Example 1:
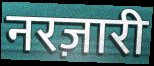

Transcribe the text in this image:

नरज़ारी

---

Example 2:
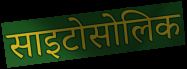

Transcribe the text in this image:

साइटोसोलिक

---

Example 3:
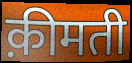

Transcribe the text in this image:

क़ीमती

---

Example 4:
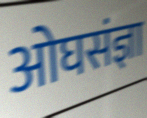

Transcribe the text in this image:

ओघसंज्ञा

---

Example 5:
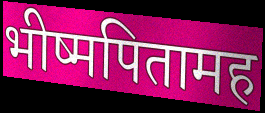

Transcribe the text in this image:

भीष्मपितामह